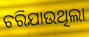
ଚରିଯାଉଥିଲା